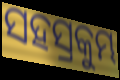
ସହସ୍ରକୁମ୍ଭ